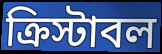
ক্রিস্টাবল